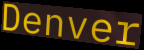
Denver